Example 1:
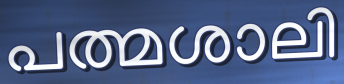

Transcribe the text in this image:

പത്മശാലി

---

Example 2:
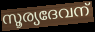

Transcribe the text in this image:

സൂര്യദേവന്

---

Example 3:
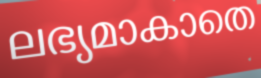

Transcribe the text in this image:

ലഭ്യമാകാതെ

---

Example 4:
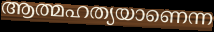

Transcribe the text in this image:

ആത്മഹത്യയാണെന്ന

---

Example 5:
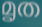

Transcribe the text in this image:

മൃത